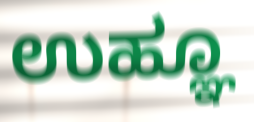
ಉಹ್ಞೂ